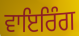
ਵਾਇਰਿੰਗ